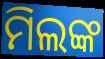
ମିଲଙ୍କ